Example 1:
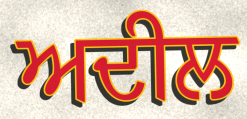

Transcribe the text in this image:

ਅਦੀਲ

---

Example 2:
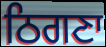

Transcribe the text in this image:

ਠਿਗਣਾ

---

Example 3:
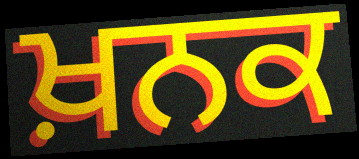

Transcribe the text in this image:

ਖ਼ਨਕ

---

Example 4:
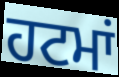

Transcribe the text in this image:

ਹਟਮਾਂ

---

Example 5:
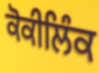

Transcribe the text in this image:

ਕੋਕੀਲਿੰਕ